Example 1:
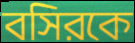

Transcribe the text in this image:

বসিরকে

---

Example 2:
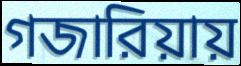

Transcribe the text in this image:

গজারিয়ায়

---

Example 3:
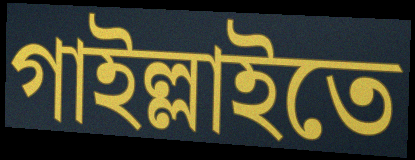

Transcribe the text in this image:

গাইল্লাইতে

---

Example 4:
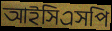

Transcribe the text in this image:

আইসিএসপি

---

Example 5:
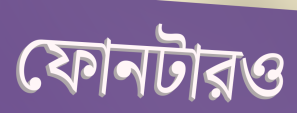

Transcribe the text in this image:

ফোনটারও